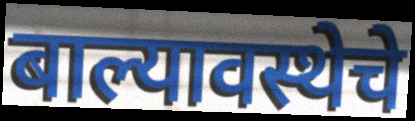
बाल्यावस्थेचे